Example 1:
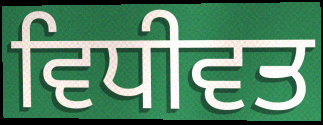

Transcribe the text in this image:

ਵਿਧੀਵਤ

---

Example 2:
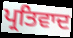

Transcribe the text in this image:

ਪ੍ਰਤਿਵਾਦ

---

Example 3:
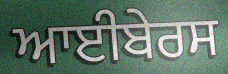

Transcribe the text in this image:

ਆਈਬੇਰਸ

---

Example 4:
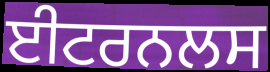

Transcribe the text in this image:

ਈਟਰਨਲਸ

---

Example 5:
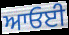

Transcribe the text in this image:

ਆਓਈ